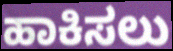
ಹಾಕಿಸಲು